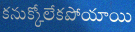
కనుక్కోలేకపోయాయి